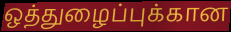
ஒத்துழைப்புக்கான